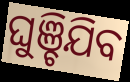
ଘୁଞ୍ଚିଯିବ